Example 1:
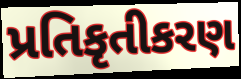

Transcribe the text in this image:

પ્રતિકૃતીકરણ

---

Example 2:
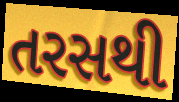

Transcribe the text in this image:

તરસથી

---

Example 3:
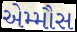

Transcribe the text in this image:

એમ્મૌસ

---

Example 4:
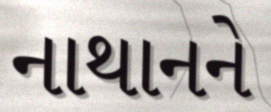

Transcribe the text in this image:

નાથાનને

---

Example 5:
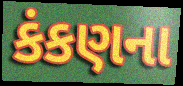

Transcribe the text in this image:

કંકણના